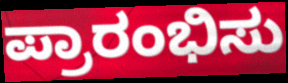
ಪ್ರಾರಂಭಿಸು